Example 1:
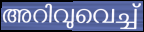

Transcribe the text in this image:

അറിവുവെച്ച്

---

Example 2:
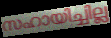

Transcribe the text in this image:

സഹായിച്ചില്ല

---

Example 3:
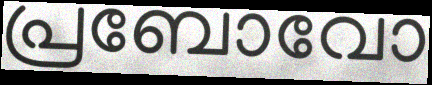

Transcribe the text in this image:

പ്രബോവോ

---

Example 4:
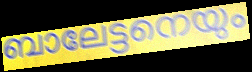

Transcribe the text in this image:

ബാലേട്ടനെയും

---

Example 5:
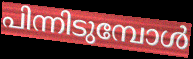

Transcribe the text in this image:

പിന്നിടുമ്പോൾ